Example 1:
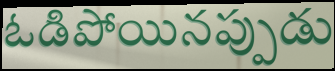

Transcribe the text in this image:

ఓడిపోయినప్పుడు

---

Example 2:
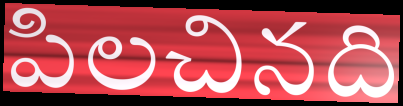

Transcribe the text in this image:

పిలచినది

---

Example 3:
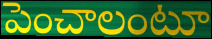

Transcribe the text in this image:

పెంచాలంటూ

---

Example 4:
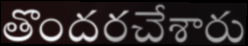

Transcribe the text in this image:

తొందరచేశారు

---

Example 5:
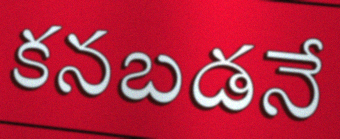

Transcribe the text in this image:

కనబడనే